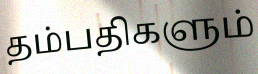
தம்பதிகளும்